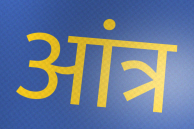
आंत्र